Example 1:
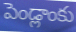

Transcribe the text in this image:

పెండ్లాంకు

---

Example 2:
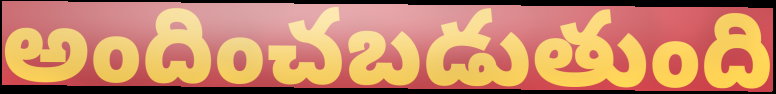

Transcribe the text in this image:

అందించబడుతుంది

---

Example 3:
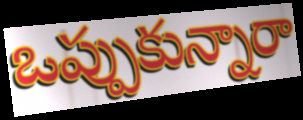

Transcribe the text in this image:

ఒప్పుకున్నారా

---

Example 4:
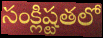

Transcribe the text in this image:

సంక్లిష్టతలో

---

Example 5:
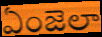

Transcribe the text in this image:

ఏంజెలా